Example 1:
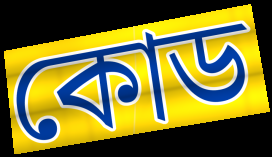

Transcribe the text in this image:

কোড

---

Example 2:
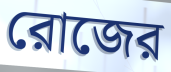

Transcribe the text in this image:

রোজের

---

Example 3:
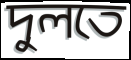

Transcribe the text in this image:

দুলতে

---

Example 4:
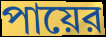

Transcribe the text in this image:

পায়ের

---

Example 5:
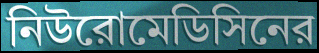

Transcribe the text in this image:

নিউরোমেডিসিনের